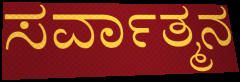
ಸರ್ವಾತ್ಮನ